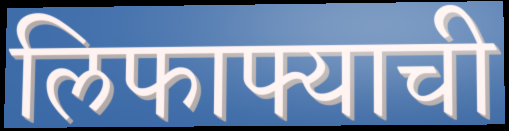
लिफाफ्याची